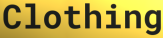
Clothing